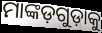
ମାଙ୍କଡ଼ଗୁଡ଼ାକୁ